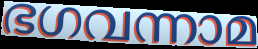
ഭഗവന്നാമ